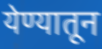
येण्यातून